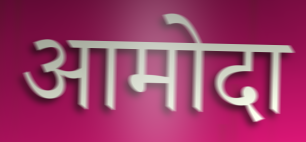
आमोदा